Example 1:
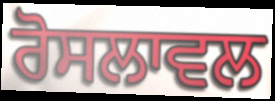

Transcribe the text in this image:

ਰੋਸਲਾਵਲ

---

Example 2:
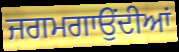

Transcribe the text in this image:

ਜਗਮਗਾਉਂਦੀਆਂ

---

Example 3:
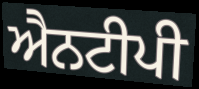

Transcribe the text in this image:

ਐਨਟੀਪੀ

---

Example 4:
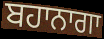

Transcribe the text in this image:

ਬਹਾਨਾਗਾ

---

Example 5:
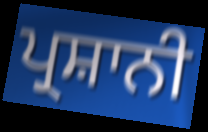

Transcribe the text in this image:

ਪ੍ਰਸ਼ਾਨੀ